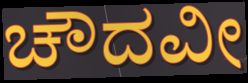
ಚೌದವೀ